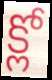
క్లో